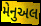
મેનુઅલ